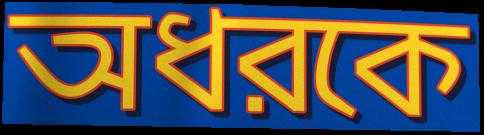
অধরকে